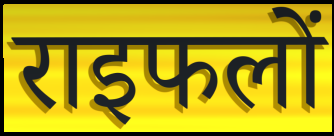
राइफलों